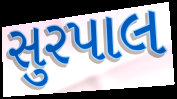
સુરપાલ